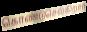
கொண்டுசெல்கிறார்